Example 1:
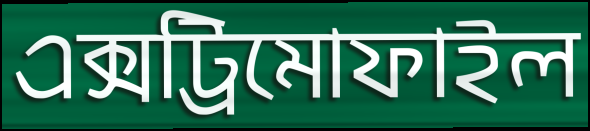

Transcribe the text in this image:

এক্সট্রিমোফাইল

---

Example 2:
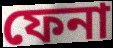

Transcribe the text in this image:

ফেনা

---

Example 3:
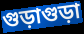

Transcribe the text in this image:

গুড়াগুড়া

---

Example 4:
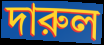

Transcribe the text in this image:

দারুল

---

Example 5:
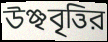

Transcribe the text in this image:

উঞ্ছবৃত্তির